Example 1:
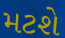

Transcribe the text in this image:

મટશે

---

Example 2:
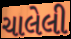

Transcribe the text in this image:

ચાલેલી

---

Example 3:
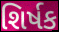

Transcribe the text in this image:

શિર્ષક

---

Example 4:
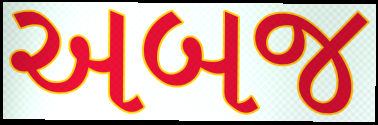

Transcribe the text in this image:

અબજ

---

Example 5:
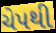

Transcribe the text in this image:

ચેપથી